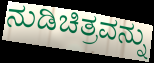
ನುಡಿಚಿತ್ರವನ್ನು